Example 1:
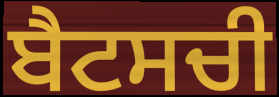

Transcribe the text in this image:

ਬੈਟਸਚੀ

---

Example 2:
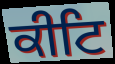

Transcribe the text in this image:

ਕੀਟਿ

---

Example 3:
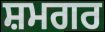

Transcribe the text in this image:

ਸ਼ਮਗਰ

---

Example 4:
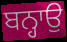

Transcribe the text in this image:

ਬਨ੍ਹਾਉ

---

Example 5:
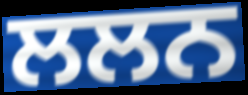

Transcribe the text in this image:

ਲਲਨ